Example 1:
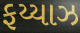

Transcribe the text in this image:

ફય્યાઝ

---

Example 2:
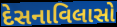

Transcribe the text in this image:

દેસનાવિલાસો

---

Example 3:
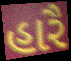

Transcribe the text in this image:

હારૈ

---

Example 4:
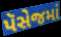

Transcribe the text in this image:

પૅસેજમાં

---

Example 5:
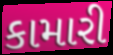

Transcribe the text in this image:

કામારી